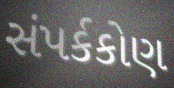
સંપર્કકોણ